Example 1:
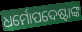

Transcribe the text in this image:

ଧର୍ମୋପଦେଷ୍ଟାଙ୍କ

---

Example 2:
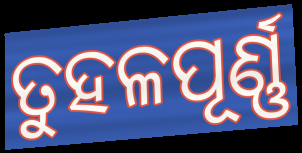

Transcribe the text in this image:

ତୁହଳପୂର୍ଣ୍ଣ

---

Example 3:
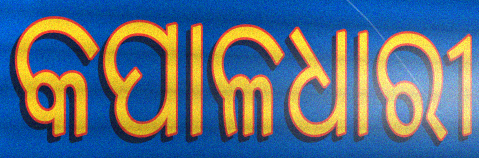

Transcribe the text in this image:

କପାଳଧାରୀ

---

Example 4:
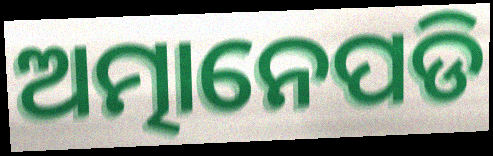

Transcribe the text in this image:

ଅତ୍ମାନେପଡି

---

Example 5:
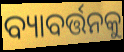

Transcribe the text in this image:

ବ୍ୟାବର୍ତ୍ତନକୁ